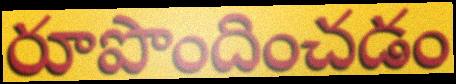
రూపొందించడం